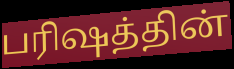
பரிஷத்தின்